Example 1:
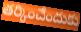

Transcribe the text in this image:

తర్కించేందుకు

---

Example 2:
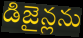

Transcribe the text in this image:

డిజైన్లను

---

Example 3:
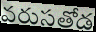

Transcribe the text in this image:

వరుసతోడ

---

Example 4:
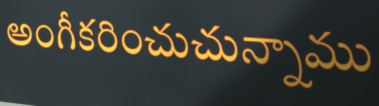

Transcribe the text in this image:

అంగీకరించుచున్నాము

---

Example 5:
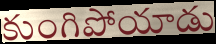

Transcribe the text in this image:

కుంగిపోయాడు